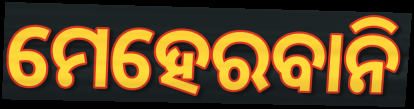
ମେହେରବାନି